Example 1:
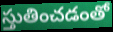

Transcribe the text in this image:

స్తుతించడంతో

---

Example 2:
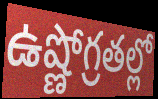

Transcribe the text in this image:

ఉష్ణోగ్రతల్లో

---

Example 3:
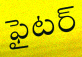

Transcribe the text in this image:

ఫైటర్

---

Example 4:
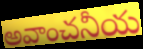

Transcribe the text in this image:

అవాంచనీయ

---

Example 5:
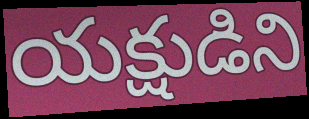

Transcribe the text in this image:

యక్షుడిని